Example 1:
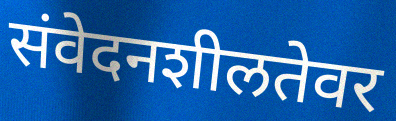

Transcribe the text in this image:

संवेदनशीलतेवर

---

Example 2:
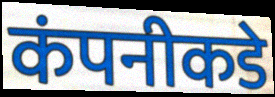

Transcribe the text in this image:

कंपनीकडे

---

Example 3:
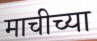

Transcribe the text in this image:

माचीच्या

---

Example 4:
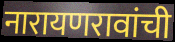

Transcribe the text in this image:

नारायणरावांची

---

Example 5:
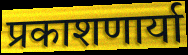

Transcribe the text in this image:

प्रकाशणार्या